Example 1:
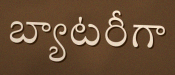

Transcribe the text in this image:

బ్యాటరీగా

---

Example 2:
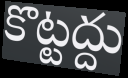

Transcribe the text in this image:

కొట్టద్దు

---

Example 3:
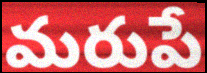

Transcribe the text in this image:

మరుపే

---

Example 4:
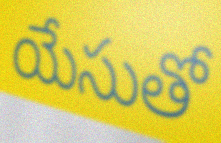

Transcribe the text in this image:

యేసుతో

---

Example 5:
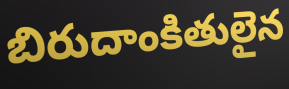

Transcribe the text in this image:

బిరుదాంకితులైన